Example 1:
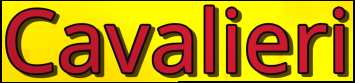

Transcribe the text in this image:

Cavalieri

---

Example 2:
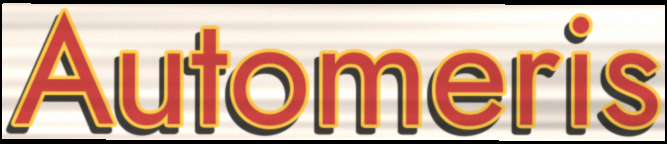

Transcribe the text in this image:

Automeris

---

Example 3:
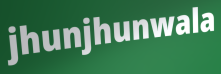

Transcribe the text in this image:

jhunjhunwala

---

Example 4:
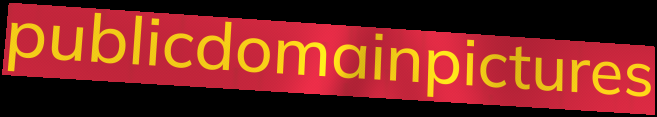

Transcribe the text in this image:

publicdomainpictures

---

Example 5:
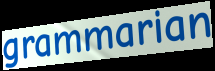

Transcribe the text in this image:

grammarian